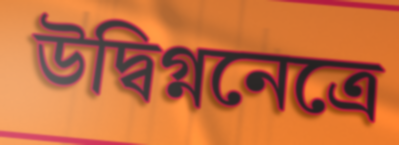
উদ্বিগ্ননেত্রে